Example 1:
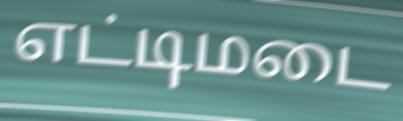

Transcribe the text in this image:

எட்டிமடை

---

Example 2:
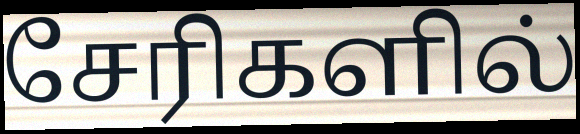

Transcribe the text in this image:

சேரிகளில்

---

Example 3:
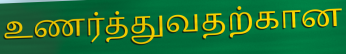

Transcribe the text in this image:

உணர்த்துவதற்கான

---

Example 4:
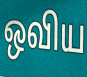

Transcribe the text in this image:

ஒவிய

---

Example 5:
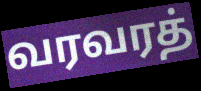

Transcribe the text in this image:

வரவரத்